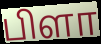
பிளா